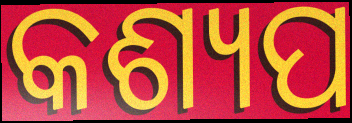
କଶ୍ୟପ